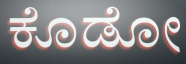
ಕೊಡೋ